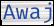
Awaj